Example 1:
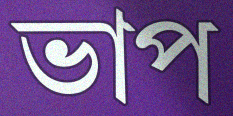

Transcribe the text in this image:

ভাপ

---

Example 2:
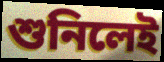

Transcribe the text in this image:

শুনিলেই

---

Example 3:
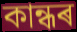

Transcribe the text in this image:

কান্ধৰ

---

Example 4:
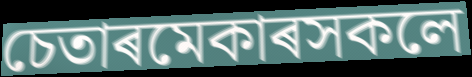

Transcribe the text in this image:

চেতাৰমেকাৰসকলে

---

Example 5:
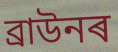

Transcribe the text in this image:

ব্ৰাউনৰ